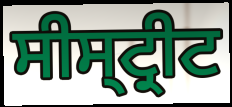
ਸੀਸ੍ਟ੍ਰੀਟ